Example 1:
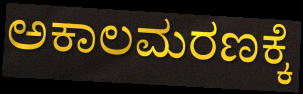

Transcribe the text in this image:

ಅಕಾಲಮರಣಕ್ಕೆ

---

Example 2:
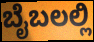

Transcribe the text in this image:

ಬೈಬಲಲ್ಲಿ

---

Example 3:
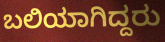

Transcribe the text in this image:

ಬಲಿಯಾಗಿದ್ದರು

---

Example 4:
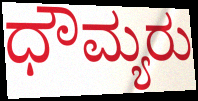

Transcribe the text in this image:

ಧೌಮ್ಯರು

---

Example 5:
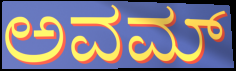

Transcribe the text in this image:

ಅವಮ್